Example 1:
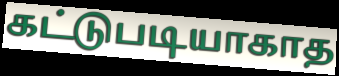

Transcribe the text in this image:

கட்டுபடியாகாத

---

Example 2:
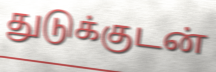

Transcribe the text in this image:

துடுக்குடன்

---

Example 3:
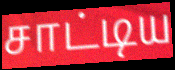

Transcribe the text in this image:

சாட்டிய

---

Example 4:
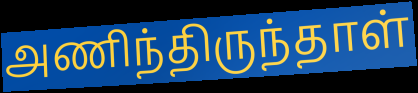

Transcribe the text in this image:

அணிந்திருந்தாள்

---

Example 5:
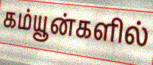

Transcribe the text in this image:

கம்யூன்களில்